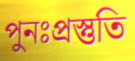
পুনঃপ্রস্তুতি